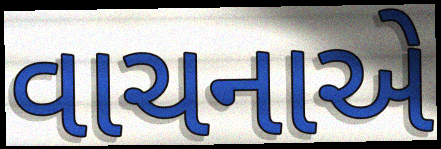
વાચનાએ